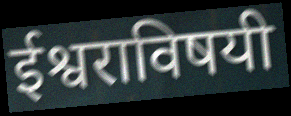
ईश्वराविषयी